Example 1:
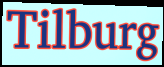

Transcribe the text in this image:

Tilburg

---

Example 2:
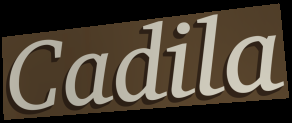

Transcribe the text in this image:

Cadila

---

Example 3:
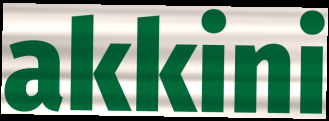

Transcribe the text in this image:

akkini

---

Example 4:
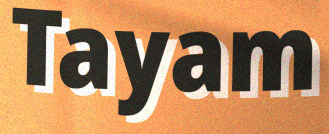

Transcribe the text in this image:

Tayam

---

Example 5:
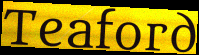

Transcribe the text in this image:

Teaford